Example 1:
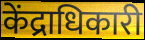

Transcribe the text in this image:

केंद्राधिकारी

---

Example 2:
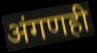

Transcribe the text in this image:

अंगणही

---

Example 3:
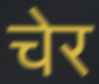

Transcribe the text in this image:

चेर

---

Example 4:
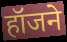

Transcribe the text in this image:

हॉजने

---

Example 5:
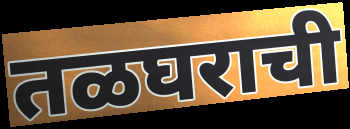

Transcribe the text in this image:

तळघराची